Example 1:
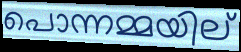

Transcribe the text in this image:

പൊന്നമ്മയില്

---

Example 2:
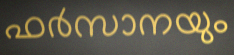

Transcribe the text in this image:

ഫർസാനയും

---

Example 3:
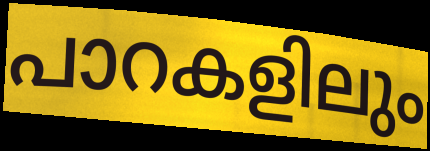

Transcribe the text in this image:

പാറകളിലും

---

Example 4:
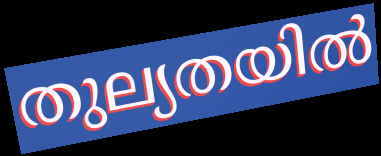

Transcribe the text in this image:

തുല്യതയിൽ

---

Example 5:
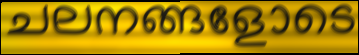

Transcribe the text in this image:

ചലനങ്ങളോടെ